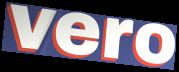
vero